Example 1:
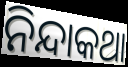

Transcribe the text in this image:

ନିନ୍ଦାକଥା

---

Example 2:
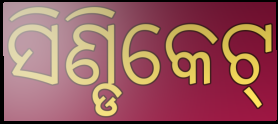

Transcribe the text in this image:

ସିଣ୍ଡିକେଟ୍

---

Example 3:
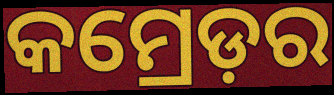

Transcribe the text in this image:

କମ୍ରେଡ଼ର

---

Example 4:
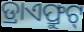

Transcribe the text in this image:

ଡ୍ରାଏଫ୍ରୁଟ୍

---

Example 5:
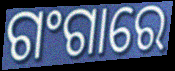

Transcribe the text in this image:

ଗଂଗାରେ